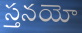
స్తనయో